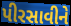
પીરસાવીને